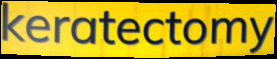
keratectomy